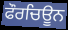
ਫੌਰਚਿਊਨ